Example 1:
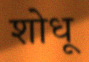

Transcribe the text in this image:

शोधू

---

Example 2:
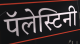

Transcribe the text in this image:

पॅलेस्टिनी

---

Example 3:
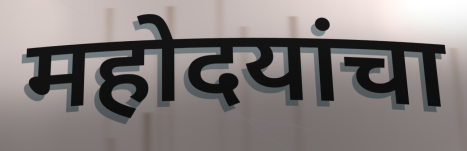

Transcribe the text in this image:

महोदयांचा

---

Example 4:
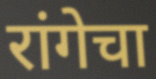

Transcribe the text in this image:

रांगेचा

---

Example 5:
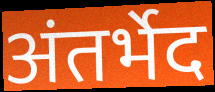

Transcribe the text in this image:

अंतर्भेद